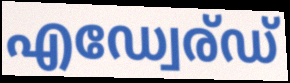
എഡ്വേര്ഡ്